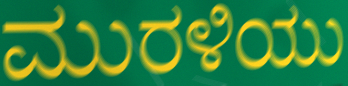
ಮುರಳಿಯು